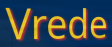
Vrede